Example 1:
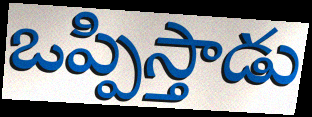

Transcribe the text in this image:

ఒప్పిస్తాడు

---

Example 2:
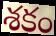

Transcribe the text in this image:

శకం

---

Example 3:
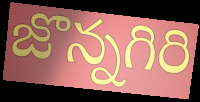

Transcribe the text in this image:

జొన్నగిరి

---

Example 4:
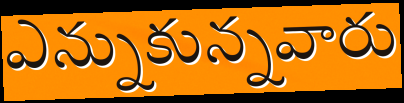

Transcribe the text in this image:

ఎన్నుకున్నవారు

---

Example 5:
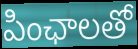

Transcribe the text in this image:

పింఛాలతో